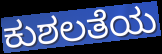
ಕುಶಲತೆಯ